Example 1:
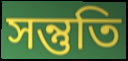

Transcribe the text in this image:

সন্তুতি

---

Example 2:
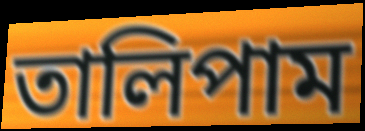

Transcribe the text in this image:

তালিপাম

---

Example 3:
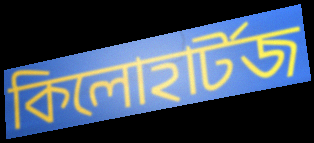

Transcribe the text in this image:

কিলোহার্টজ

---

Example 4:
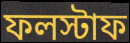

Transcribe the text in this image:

ফলস্টাফ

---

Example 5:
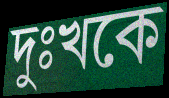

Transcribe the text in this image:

দুঃখকে